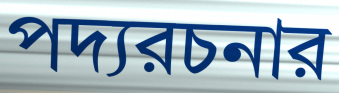
পদ্যরচনার